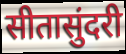
सीतासुंदरी